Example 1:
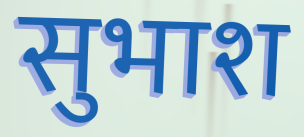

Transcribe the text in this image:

सुभाश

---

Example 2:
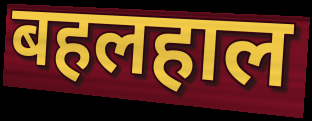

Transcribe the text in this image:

बहलहाल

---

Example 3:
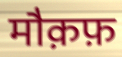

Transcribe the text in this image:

मौक़फ़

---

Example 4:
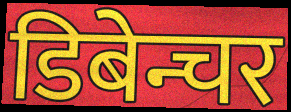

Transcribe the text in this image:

डिबेन्चर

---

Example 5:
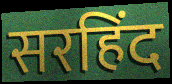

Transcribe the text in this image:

सरहिंद